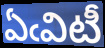
ఏఁవిటీ